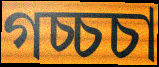
গচ্চচা